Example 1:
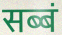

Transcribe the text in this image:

सब्बं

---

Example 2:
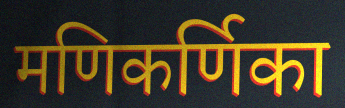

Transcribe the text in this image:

मणिकर्णिका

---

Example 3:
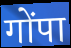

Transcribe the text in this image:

गोंपा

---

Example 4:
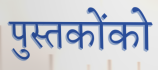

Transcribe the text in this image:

पुस्तकोंको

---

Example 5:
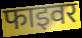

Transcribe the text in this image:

फाइवर